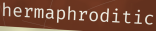
hermaphroditic